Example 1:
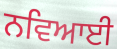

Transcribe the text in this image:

ਨਵਿਆਈ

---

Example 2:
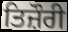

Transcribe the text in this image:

ਤਿਜ਼ੌਰੀ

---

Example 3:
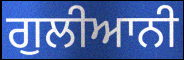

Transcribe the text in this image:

ਗੁਲੀਆਨੀ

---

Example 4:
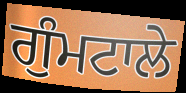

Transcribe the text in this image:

ਗੁੰਮਟਾਲੇ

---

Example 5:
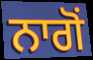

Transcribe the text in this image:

ਨਾਗੋਂ